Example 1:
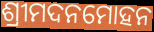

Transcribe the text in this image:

ଶ୍ରୀମଦନମୋହନ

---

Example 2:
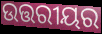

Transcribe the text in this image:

ଉତ୍ତରୀୟର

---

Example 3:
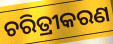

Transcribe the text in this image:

ଚରିତ୍ରୀକରଣ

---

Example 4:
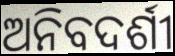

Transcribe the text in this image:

ଅନିବଦର୍ଶୀ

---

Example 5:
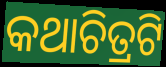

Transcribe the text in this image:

କଥାଚିତ୍ରଟି